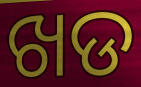
ଖଡ